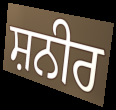
ਸ਼ਨੀਰ